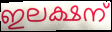
ഇലക്ഷന്